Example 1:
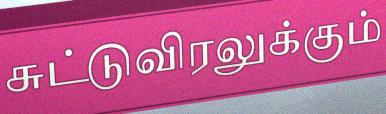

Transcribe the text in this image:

சுட்டுவிரலுக்கும்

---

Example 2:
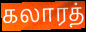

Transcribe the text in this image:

கலாரத்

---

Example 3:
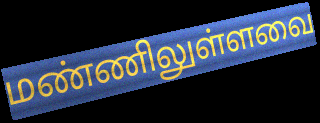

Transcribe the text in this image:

மண்ணிலுள்ளவை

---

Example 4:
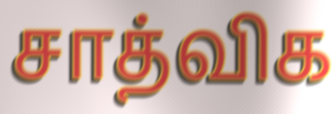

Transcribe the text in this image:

சாத்விக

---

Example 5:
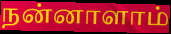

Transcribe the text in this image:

நன்னாளாம்